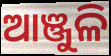
ଆଞ୍ଜୁଳି